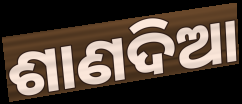
ଶାଣଦିଆ